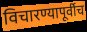
विचारण्यापूर्वीच